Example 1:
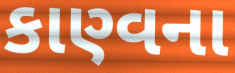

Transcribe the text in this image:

કાણ્વના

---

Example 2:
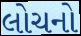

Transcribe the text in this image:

લોચનો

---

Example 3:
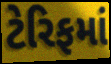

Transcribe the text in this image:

ટેરિફમાં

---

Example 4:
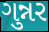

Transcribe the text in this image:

ગુન્નર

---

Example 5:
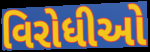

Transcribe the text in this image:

વિરોધીઓ